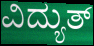
ವಿದ್ಯುತ್